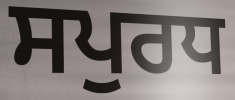
ਸਪੁਰਧ